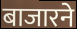
बाजारने